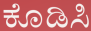
ಕೊಡಿಸಿ